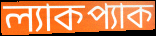
ল্যাকপ্যাক